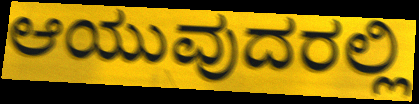
ಆಯುವುದರಲ್ಲಿ